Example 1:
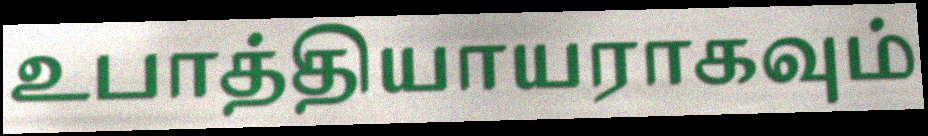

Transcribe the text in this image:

உபாத்தியாயராகவும்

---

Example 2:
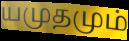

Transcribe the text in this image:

யமுதமும்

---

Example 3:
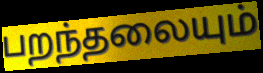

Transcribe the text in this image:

பறந்தலையும்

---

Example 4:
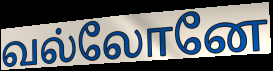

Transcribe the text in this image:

வல்லோனே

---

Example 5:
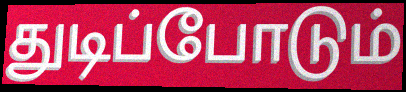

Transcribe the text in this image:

துடிப்போடும்